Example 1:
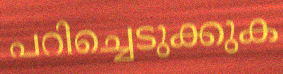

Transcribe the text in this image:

പറിച്ചെടുക്കുക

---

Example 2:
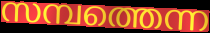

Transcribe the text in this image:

സമ്പത്തെന്ന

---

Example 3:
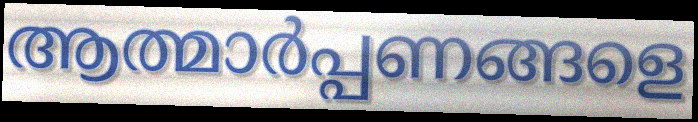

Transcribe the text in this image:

ആത്മാർപ്പണങ്ങളെ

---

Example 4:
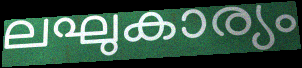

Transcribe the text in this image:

ലഘുകാര്യം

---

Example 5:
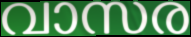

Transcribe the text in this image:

വാസര